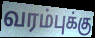
வரம்புக்கு